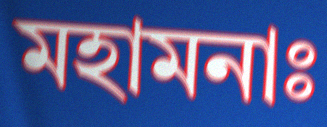
মহামনাঃ